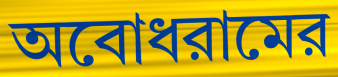
অবোধরামের